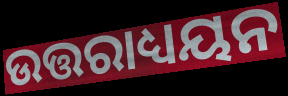
ଉତ୍ତରାଧ୍ୟୟନ